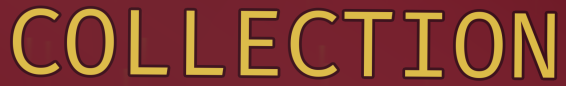
COLLECTION